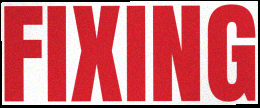
FIXING